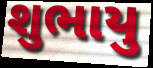
શુભાયુ